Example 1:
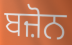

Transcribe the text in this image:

ਬਜ਼ੋਨ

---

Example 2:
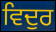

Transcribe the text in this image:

ਵਿਦੁਰ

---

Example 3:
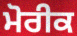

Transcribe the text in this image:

ਮੋਰੀਕ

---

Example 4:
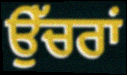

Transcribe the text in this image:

ਉੱਚਰਾਂ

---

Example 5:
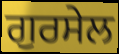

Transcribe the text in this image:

ਗੁਰਸੇਲ